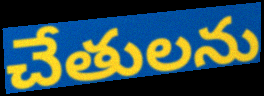
చేతులను